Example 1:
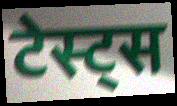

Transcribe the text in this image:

टेस्ट्स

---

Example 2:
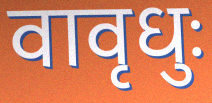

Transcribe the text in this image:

वावृधुः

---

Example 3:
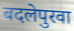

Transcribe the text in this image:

बदलेपुरवा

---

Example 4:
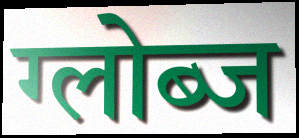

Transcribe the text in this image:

ग्लोब्ज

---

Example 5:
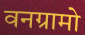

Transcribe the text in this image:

वनग्रामो